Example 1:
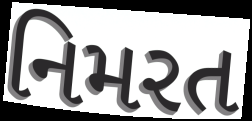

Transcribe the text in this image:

નિમરત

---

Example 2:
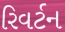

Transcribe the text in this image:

રિવર્ટન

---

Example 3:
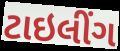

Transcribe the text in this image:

ટાઇલીંગ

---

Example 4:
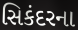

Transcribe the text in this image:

સિકંદરના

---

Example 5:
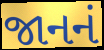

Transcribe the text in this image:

જાનનં